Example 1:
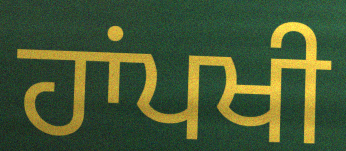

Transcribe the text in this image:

ਹਾਂਪਖੀ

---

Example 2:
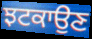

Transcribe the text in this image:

ਝਟਕਾਉਣ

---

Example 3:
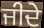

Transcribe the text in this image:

ਜੀਦੇ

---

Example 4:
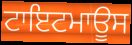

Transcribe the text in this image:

ਟਾਇਟਮਾਊਸ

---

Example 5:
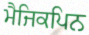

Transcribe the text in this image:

ਮੈਜਿਕਪਿਨ